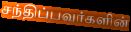
சந்திப்பவர்களின்